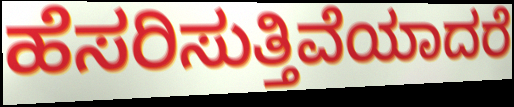
ಹೆಸರಿಸುತ್ತಿವೆಯಾದರೆ